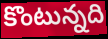
కొంటున్నది